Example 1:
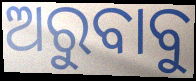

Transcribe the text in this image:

ଅରୁବାବୁ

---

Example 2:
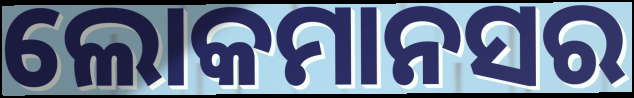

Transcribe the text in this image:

ଲୋକମାନସର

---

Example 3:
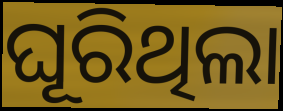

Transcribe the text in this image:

ଘୂରିଥିଲା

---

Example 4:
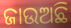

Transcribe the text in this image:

ଜାଉଅଛି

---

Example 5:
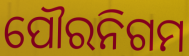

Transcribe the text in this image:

ପୌରନିଗମ